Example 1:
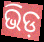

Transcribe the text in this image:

ଭିଡ଼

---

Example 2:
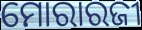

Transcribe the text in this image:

ମୋରାରଜୀ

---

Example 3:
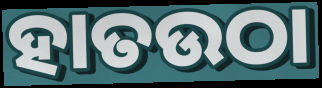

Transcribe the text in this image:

ହାତଉଠା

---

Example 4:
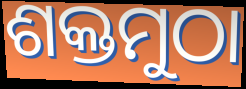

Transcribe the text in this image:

ଶକ୍ତମୁଠା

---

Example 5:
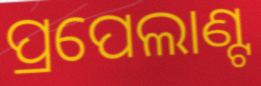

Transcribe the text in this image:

ପ୍ରପେଲାଣ୍ଟ